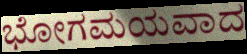
ಭೋಗಮಯವಾದ